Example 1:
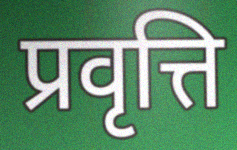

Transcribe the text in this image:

प्रवृत्ति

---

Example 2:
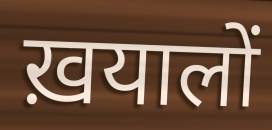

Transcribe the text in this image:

ख़यालों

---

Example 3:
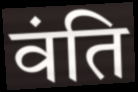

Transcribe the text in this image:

वंति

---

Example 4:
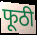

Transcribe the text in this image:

फूठी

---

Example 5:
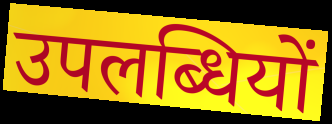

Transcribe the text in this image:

उपलब्धियों